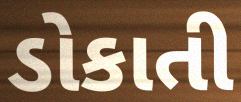
ડોકાતી